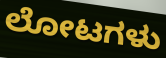
ಲೋಟಗಳು